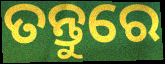
ତନ୍ତୁରେ